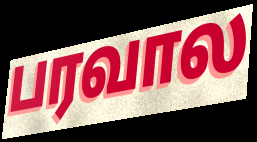
பரவால